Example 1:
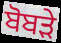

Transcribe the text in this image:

ਬੋਬੜੇ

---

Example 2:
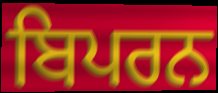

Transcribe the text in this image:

ਬਿਪਰਨ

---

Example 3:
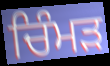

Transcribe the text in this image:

ਚਿੰਮੜ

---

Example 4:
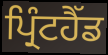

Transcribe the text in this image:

ਪ੍ਰਿੰਟਹੈੱਡ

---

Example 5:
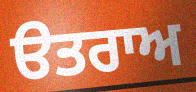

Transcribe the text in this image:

ੳਤਰਾਅ